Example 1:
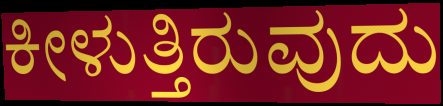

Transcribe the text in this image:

ಕೀಳುತ್ತಿರುವುದು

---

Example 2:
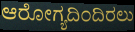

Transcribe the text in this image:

ಆರೋಗ್ಯದಿಂದಿರಲು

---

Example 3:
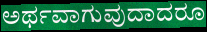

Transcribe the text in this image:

ಅರ್ಥವಾಗುವುದಾದರೂ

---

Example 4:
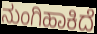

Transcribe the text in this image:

ನುಂಗಿಹಾಕಿದೆ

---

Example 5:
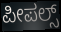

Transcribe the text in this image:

ಪೀಪಲ್ಸ್